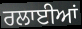
ਰਲਾਈਆਂ